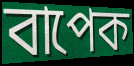
বাপেক